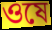
ওষে